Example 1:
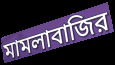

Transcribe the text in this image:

মামলাবাজির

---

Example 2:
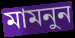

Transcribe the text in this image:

মামনুন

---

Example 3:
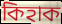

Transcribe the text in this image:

কিহাক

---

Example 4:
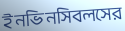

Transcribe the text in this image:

ইনভিনসিবলসের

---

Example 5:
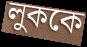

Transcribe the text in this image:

লুককে